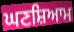
ਘਣਸ਼ਿਆਮ